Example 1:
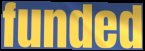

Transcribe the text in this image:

funded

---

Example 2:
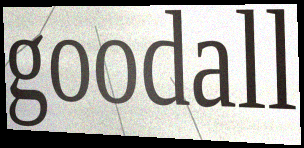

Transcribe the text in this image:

goodall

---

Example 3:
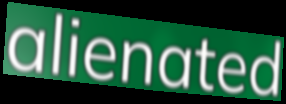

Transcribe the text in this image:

alienated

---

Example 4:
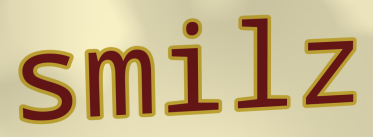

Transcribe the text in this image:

smilz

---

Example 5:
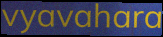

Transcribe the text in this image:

vyavahara